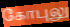
கோபுலு